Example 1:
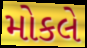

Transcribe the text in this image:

મોકલે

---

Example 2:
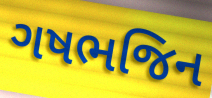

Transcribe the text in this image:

ગષભજિન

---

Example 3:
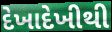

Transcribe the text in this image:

દેખાદેખીથી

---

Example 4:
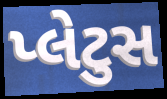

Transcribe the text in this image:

પ્લેટુસ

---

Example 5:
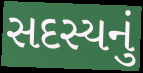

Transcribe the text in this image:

સદસ્યનું